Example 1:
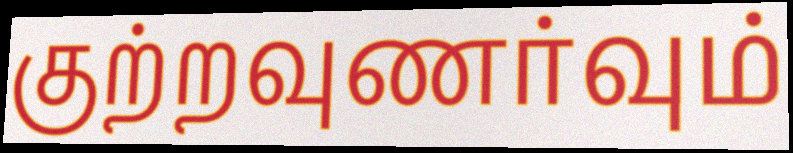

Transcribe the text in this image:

குற்றவுணர்வும்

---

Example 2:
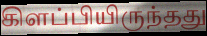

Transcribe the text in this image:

கிளப்பியிருந்தது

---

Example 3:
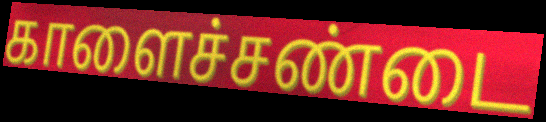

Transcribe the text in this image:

காளைச்சண்டை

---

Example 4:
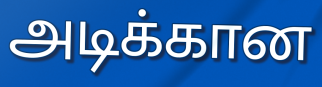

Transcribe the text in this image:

அடிக்கான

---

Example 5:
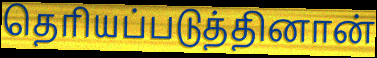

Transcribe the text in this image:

தெரியப்படுத்தினான்